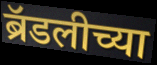
ब्रॅडलीच्या